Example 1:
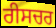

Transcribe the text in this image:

ਰੀਸਚਰ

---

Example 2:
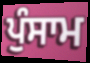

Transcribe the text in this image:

ਪੁੰਸਾਮ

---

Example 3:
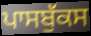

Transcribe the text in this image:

ਪਾਸਬੁੱਕਸ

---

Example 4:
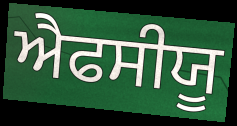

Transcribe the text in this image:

ਐਫਸੀਯੂ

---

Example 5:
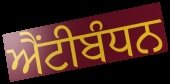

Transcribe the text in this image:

ਐਂਟੀਬੰਧਨ